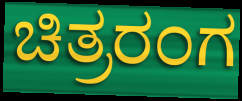
ಚಿತ್ರರಂಗ